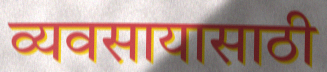
व्यवसायासाठी